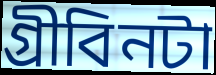
গ্রীবিনটা